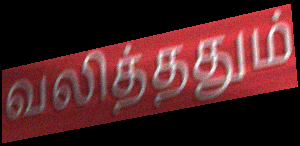
வலித்ததும்